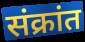
संक्रांत